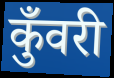
कुँवरी